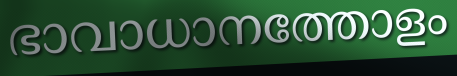
ഭാവാധാനത്തോളം